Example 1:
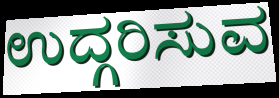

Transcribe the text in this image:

ಉದ್ಗರಿಸುವ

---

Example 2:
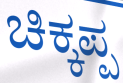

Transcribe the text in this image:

ಚಿಕ್ಕಪ್ಪ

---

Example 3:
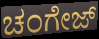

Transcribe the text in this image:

ಚಂಗೇಜ್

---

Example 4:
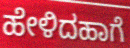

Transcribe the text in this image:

ಹೇಳಿದಹಾಗೆ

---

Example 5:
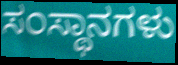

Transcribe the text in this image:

ಸಂಸ್ಥಾನಗಳು